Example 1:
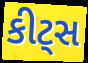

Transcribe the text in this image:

કીટ્સ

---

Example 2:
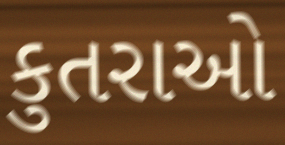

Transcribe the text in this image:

કુતરાઓ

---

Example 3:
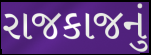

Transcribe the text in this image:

રાજકાજનું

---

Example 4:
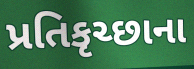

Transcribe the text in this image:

પ્રતિકૃચ્છાના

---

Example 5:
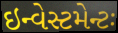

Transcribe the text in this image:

ઇન્વેસ્ટમેન્ટઃ